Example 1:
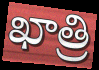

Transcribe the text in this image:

ఖాత్రి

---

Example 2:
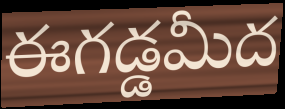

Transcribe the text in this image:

ఈగడ్డమీద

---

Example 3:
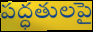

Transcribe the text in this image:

పద్ధతులపై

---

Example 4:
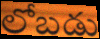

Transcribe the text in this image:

లోబడు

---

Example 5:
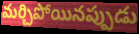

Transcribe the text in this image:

మర్చిపోయినప్పుడు